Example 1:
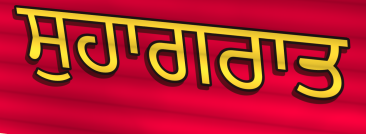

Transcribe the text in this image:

ਸੁਹਾਗਰਾਤ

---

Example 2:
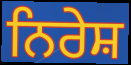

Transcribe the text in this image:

ਨਿਰੇਸ਼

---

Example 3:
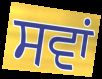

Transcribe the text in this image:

ਸਵਾਂ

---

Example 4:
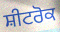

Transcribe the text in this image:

ਸ਼ੀਟਰੋਕ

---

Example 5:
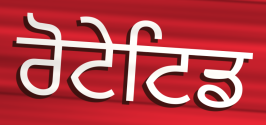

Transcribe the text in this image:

ਰੋਟੇਟਿਡ